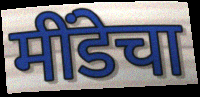
मींडेचा